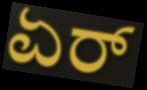
ಏರ್